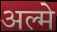
अल्मे